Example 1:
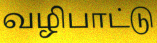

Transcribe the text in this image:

வழிபாட்டு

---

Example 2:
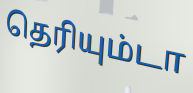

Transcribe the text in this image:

தெரியும்டா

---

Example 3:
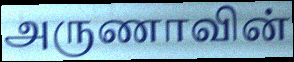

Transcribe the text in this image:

அருணாவின்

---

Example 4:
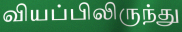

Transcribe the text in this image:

வியப்பிலிருந்து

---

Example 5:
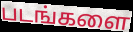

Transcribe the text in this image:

படங்களை